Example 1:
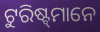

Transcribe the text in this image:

ଟୁରିଷ୍ଟ୍‍ମାନେ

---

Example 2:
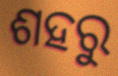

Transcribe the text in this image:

ଶହରୁ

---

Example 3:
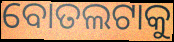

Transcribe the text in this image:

ବୋତଲଟାକୁ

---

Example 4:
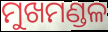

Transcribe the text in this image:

ମୁଖମଣ୍ଡଳ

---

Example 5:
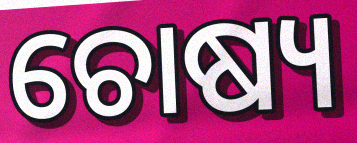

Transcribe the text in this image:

ଚୋଷ୍ୟ